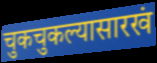
चुकचुकल्यासारखं